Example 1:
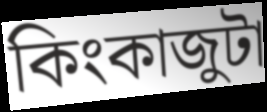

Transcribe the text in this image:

কিংকাজুটা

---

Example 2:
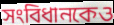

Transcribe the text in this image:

সংবিধানকেও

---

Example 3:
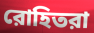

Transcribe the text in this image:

রোহিতরা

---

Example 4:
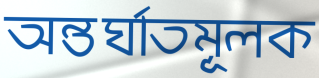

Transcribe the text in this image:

অন্তর্ঘাতমূলক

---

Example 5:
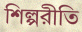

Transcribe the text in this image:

শিল্পরীতি